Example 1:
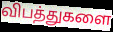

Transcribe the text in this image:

விபத்துகளை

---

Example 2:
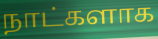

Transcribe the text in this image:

நாட்களாக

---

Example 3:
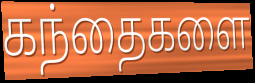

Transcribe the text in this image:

கந்தைகளை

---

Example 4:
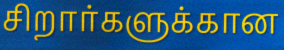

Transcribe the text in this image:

சிறார்களுக்கான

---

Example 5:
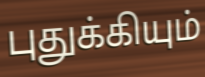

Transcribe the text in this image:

புதுக்கியும்